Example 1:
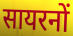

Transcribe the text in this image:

सायरनों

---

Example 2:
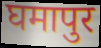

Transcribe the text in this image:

घमापुर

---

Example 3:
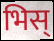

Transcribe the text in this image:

भिस्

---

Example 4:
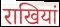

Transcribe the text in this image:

राखियां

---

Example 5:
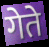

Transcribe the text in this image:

गेते